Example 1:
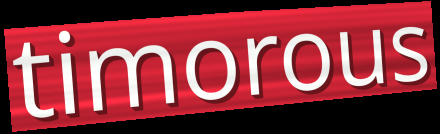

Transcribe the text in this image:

timorous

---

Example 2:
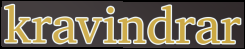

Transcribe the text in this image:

kravindrar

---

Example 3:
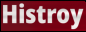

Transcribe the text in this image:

Histroy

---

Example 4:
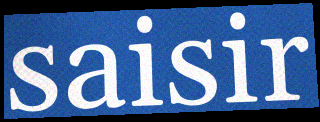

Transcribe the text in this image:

saisir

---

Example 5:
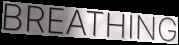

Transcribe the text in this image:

BREATHING